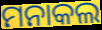
ମନାକଲ